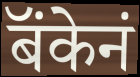
बॅंकेनं